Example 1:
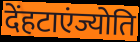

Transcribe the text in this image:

देंहटाएंज्योति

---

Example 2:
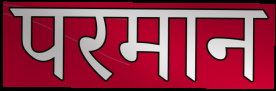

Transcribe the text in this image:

परमान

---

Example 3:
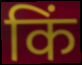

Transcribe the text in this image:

किं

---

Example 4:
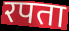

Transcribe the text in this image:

रपता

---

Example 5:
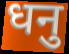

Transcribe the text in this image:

धनु